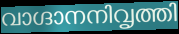
വാഗ്ദാനനിവൃത്തി